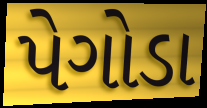
પેગોડા